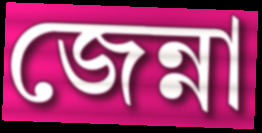
জেন্না